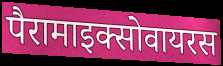
पैरामाइक्सोवायरस